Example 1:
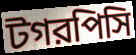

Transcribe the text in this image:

টগরপিসি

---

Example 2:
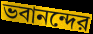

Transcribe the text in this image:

ভবানন্দের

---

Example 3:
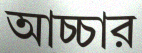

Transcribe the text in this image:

আচ্চার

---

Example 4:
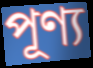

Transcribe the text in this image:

পূণ্য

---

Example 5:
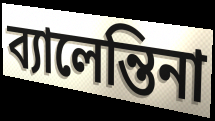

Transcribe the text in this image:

ব্যালেন্তিনা